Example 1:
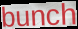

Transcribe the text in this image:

bunch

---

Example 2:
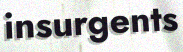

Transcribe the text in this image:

insurgents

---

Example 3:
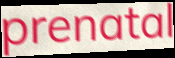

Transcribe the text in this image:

prenatal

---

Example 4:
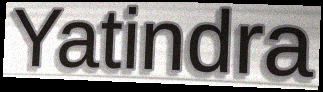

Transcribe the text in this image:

Yatindra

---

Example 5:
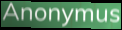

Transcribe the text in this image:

Anonymus